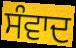
ਸੰਵਾਦ